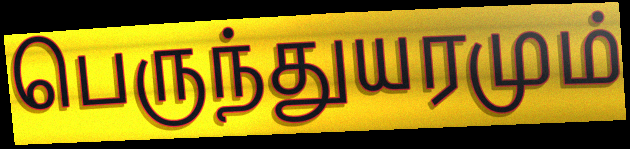
பெருந்துயரமும்